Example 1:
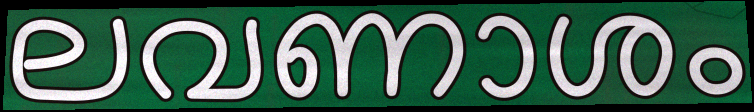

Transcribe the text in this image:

ലവണാശം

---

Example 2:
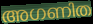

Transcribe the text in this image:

അഗണിത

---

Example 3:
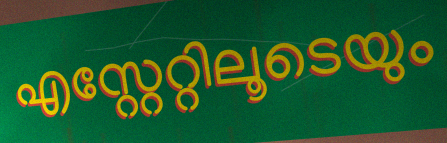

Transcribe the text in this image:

എസ്റ്റേറ്റിലൂടെയും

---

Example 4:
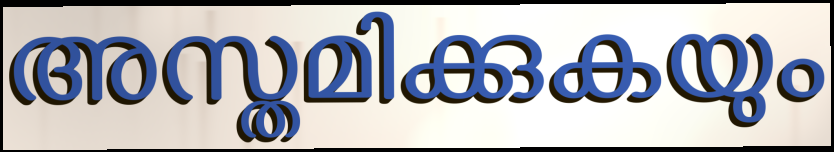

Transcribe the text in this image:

അസ്തമിക്കുകയും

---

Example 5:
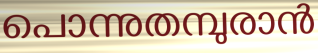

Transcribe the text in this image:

പൊന്നുതമ്പുരാൻ